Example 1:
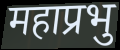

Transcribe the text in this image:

महाप्रभु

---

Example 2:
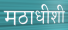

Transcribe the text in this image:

मठाधीशी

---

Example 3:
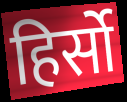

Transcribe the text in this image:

हिर्सो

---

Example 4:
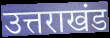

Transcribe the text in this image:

उत्तराखंड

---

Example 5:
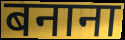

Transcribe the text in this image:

बनाना